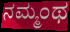
ನಮ್ಮಂಥ